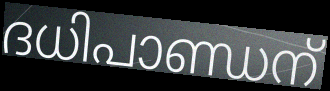
ദധിപാണ്ഡന്